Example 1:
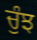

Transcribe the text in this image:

ਚੁੰਝ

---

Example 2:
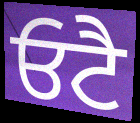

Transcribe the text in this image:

ਓਟੈ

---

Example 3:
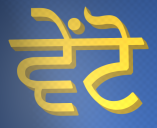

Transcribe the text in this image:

ਵੇਂਟੋ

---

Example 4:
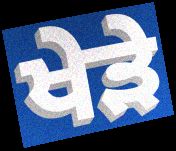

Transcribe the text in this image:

ਖੇੜੇ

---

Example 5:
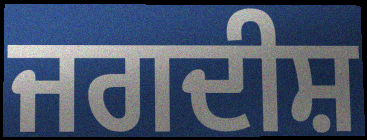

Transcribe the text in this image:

ਜਗਦੀਸ਼